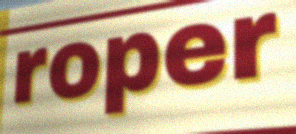
roper